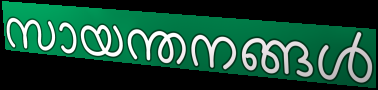
സായന്തനങ്ങൾ